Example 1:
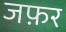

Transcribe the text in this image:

जफ़र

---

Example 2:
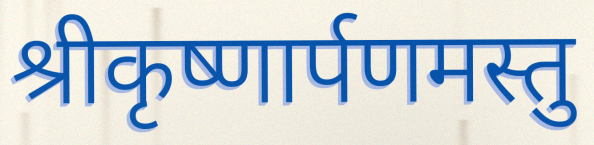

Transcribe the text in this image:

श्रीकृष्णार्पणमस्तु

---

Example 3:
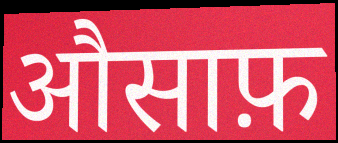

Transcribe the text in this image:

औसाफ़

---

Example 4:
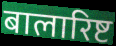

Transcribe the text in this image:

बालारिष्ट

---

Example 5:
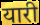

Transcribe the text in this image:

यारी